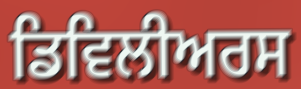
ਡਿਵਿਲੀਅਰਸ